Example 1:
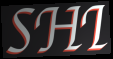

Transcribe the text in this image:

SHI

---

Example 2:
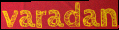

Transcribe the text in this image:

varadan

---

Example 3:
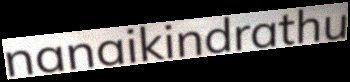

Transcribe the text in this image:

nanaikindrathu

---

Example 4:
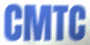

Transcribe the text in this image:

CMTC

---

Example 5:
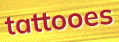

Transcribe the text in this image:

tattooes